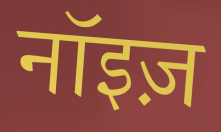
नॉइज़